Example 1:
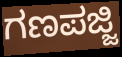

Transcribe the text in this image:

ಗಣಪಜ್ಜಿ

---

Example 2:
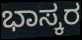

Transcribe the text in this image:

ಭಾಸ್ಕರ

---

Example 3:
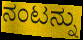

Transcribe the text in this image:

ನಂಟನ್ನು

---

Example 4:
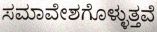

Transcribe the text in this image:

ಸಮಾವೇಶಗೊಳ್ಳುತ್ತವೆ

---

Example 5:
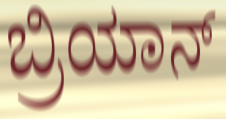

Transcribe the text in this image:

ಬ್ರಿಯಾನ್